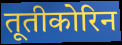
तूतीकोरिन